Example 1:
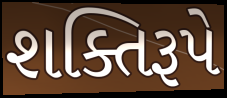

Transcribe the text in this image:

શક્તિરૂપે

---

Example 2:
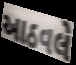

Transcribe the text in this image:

આઠવલે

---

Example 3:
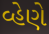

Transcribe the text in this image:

વ્હેણે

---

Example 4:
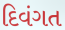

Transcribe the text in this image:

દિવંગત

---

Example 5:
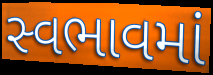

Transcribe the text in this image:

સ્વભાવમાં